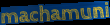
machamuni